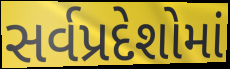
સર્વપ્રદેશોમાં